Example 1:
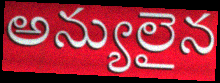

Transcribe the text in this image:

అన్యులైన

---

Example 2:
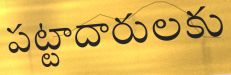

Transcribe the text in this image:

పట్టాదారులకు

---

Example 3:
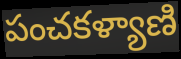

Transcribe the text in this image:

పంచకళ్యాణి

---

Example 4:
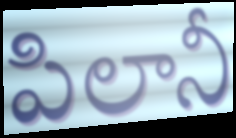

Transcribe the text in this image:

పిలానీ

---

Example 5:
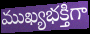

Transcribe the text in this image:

ముఖ్యభక్తిగా